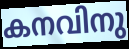
കനവിനു